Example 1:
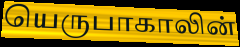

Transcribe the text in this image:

யெருபாகாலின்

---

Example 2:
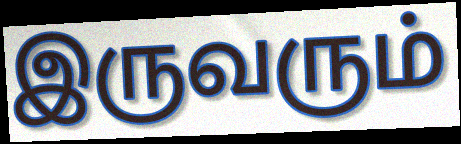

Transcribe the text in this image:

இருவரும்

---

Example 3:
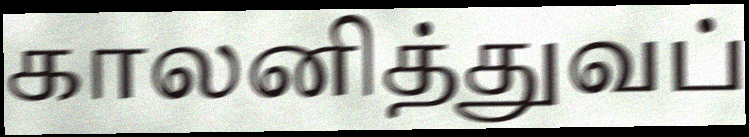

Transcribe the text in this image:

காலனித்துவப்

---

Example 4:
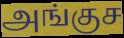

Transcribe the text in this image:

அங்குச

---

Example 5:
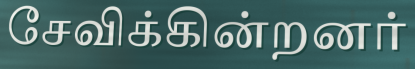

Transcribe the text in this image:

சேவிக்கின்றனர்